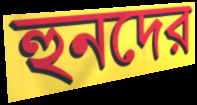
হুনদের